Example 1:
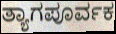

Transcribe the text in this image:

ತ್ಯಾಗಪೂರ್ವಕ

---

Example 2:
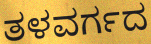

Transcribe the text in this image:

ತಳವರ್ಗದ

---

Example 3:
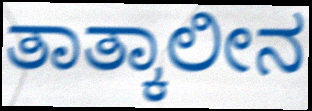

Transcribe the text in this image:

ತಾತ್ಕಾಲೀನ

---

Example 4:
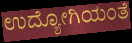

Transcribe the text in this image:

ಉದ್ಯೋಗಿಯಂತೆ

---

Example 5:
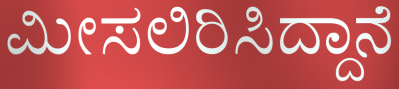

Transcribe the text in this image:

ಮೀಸಲಿರಿಸಿದ್ದಾನೆ